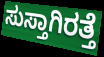
ಸುಸ್ತಾಗಿರತ್ತೆ